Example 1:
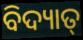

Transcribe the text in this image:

ବିଦ୍ୟାତ୍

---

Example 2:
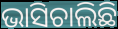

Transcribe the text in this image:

ଭାସିଚାଲିଛି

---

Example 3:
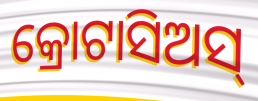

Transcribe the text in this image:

କ୍ରୋଟାସିଅସ୍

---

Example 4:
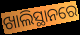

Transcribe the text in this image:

ଖାଲିସ୍ଥାନରେ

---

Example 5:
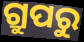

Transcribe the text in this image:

ଗ୍ରୁପରୁ